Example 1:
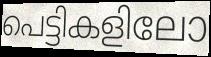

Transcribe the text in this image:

പെട്ടികളിലോ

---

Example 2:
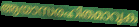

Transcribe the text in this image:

ആയാസരഹിതമാവുക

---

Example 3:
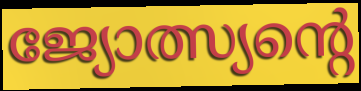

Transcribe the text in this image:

ജ്യോത്സ്യന്റെ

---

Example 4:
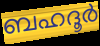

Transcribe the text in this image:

ബഹദൂർ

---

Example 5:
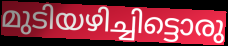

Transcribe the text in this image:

മുടിയഴിച്ചിട്ടൊരു